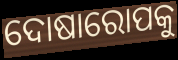
ଦୋଷାରୋପକୁ